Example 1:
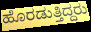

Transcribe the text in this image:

ಹೊರಡುತ್ತಿದ್ದರು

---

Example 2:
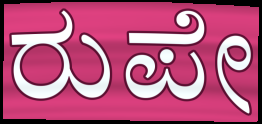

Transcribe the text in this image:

ರುಪೇ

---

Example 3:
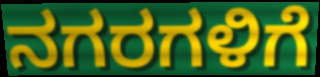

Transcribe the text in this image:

ನಗರಗಳಿಗೆ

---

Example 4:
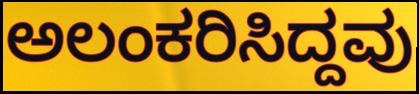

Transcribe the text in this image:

ಅಲಂಕರಿಸಿದ್ದವು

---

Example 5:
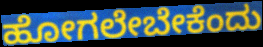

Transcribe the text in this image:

ಹೋಗಲೇಬೇಕೆಂದು